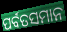
ପର୍ବତସମାନ